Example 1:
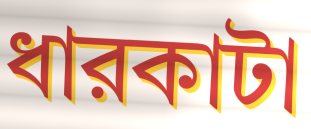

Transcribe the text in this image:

ধারকাটা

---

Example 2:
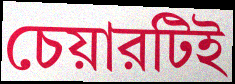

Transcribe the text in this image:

চেয়ারটিই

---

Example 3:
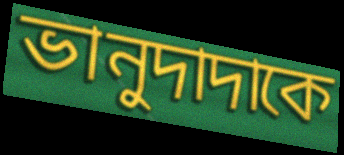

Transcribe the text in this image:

ভানুদাদাকে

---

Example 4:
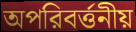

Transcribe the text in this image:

অপরিবর্ত্তনীয়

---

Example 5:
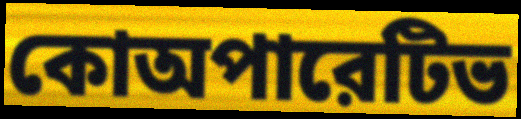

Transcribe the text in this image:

কোঅপারেটিভ